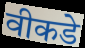
वीकडे